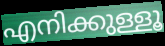
എനിക്കുള്ളൂ